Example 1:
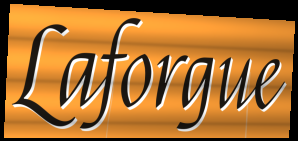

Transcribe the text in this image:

Laforgue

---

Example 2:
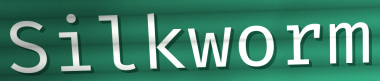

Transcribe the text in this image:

Silkworm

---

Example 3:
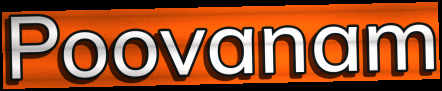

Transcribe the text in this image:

Poovanam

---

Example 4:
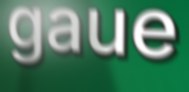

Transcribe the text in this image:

gaue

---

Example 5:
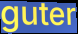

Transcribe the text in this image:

guter